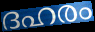
ദഹരം